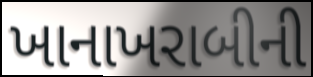
ખાનાખરાબીની